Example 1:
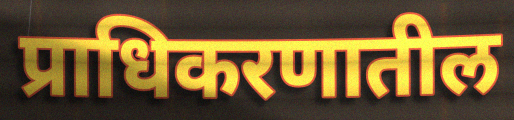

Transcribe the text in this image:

प्राधिकरणातील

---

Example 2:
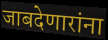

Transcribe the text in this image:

जाबदेणारांना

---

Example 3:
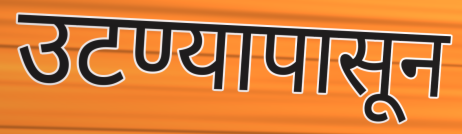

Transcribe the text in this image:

उटण्यापासून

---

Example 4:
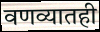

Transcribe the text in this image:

वणव्यातही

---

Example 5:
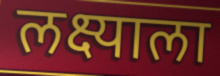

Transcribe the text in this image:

लक्ष्याला